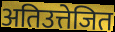
अतिउत्तेजित